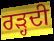
ਰੜ੍ਹਦੀ